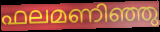
ഫലമണിഞ്ഞു